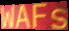
WAFs